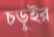
চড়ুইর